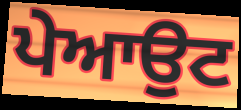
ਪੇਆਉਟ